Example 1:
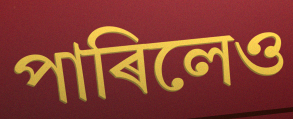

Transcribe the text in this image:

পাৰিলেও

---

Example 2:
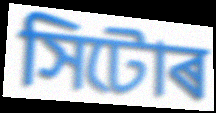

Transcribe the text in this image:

সিটোৰ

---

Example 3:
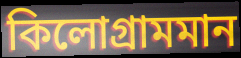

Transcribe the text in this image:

কিলোগ্ৰামমান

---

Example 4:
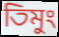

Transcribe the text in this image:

তিমুং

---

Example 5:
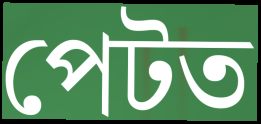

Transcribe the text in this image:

পেটত